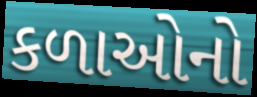
કળાઓનો